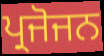
ਪ੍ਰਜੋਜਨ